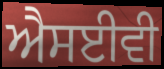
ਐਸਈਵੀ